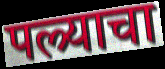
पल्याचा